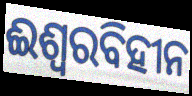
ଈଶ୍ୱରବିହୀନ